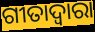
ଗୀତାଦ୍ଵାରା